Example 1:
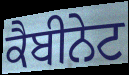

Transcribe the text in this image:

ਕੈਬੀਨੇਟ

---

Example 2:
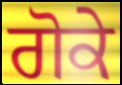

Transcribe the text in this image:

ਗੋਕੇ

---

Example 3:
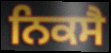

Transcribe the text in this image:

ਨਿਕਸੈ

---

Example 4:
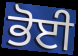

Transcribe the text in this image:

ਭੋਈ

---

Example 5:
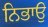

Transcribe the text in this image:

ਨਿਭਾਉ